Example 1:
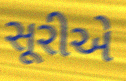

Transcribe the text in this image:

સૂરીએ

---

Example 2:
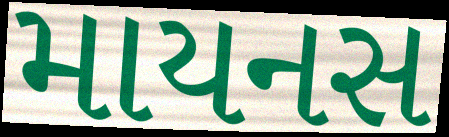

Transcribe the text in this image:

માયનસ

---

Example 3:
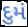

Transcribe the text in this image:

દુમં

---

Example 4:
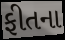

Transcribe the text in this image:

ફીતના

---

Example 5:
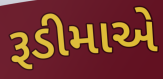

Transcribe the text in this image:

રૂડીમાએ